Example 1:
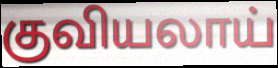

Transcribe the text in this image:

குவியலாய்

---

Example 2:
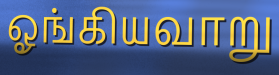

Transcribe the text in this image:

ஓங்கியவாறு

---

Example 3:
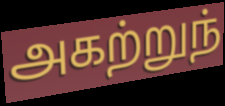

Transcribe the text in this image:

அகற்றுந்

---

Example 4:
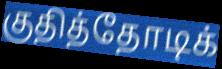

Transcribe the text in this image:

குதித்தோடிக்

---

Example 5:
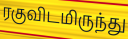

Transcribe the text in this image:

ரகுவிடமிருந்து